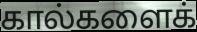
கால்களைக்